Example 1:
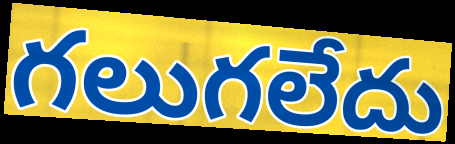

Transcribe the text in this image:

గలుగలేదు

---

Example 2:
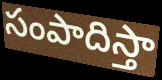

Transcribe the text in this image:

సంపాదిస్తా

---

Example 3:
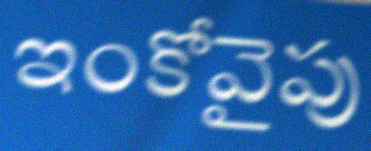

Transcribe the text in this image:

ఇంకోవైపు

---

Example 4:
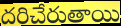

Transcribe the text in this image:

దరిచేరుతాయి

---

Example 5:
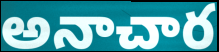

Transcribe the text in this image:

అనాచార